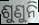
ଶୁଣୁନି